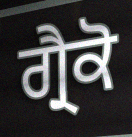
ਗ੍ਰੈਕੋ